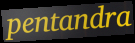
pentandra